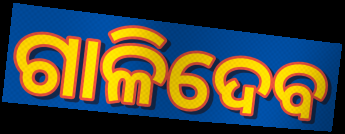
ଗାଳିଦେବ